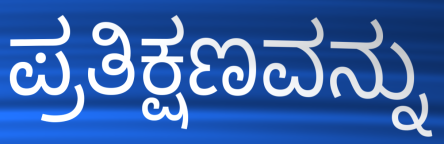
ಪ್ರತಿಕ್ಷಣವನ್ನು